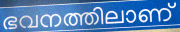
ഭവനത്തിലാണ്